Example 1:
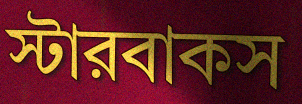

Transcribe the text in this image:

স্টারবাকস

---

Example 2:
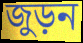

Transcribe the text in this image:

জুড়ন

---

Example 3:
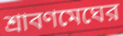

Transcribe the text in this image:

শ্রাবণমেঘের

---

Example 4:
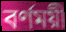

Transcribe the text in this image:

বর্ণময়ী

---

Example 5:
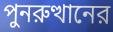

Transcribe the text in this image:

পুনরুত্থানের